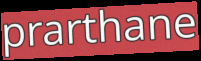
prarthane